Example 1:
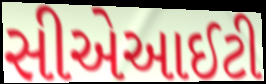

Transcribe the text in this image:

સીએઆઈટી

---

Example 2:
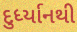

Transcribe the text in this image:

દુર્ધ્યાનથી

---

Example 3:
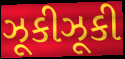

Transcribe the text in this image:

ઝૂકીઝૂકી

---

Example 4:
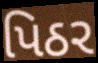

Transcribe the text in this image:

પિઠર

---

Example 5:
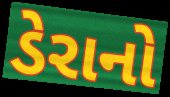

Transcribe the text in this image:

ડેરાનો